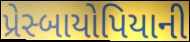
પ્રેસ્બાયોપિયાની